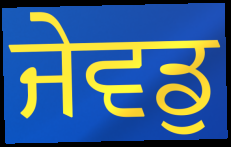
ਜੇਵਡੁ